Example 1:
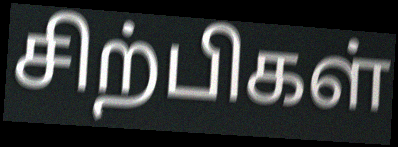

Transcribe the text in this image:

சிற்பிகள்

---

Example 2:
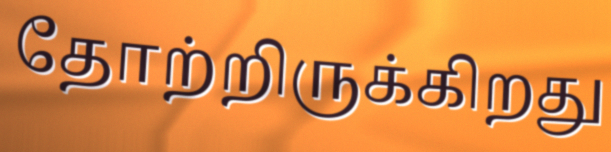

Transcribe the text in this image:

தோற்றிருக்கிறது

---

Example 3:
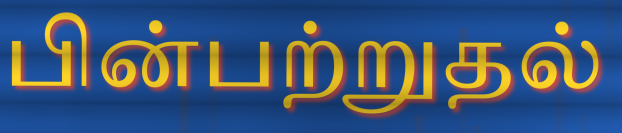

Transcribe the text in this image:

பின்பற்றுதல்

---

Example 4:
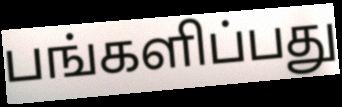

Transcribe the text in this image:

பங்களிப்பது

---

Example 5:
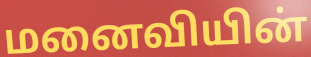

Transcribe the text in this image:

மனைவியின்